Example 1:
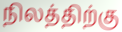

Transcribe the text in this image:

நிலத்திற்கு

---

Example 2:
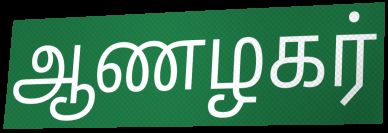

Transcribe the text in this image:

ஆணழகர்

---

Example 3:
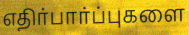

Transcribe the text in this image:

எதிர்பார்ப்புகளை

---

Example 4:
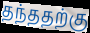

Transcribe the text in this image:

தந்ததற்கு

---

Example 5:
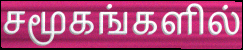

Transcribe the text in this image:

சமூகங்களில்